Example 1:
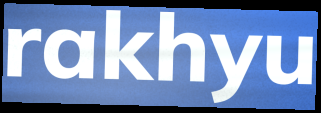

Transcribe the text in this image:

rakhyu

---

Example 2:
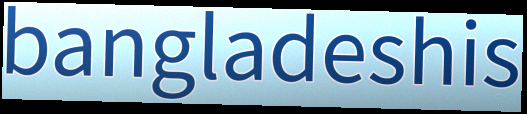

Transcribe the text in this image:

bangladeshis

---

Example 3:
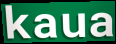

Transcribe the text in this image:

kaua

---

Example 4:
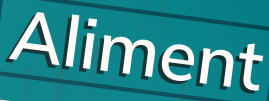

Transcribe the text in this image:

Aliment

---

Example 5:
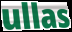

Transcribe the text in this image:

ullas